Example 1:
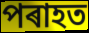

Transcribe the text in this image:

পৰাহত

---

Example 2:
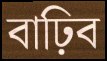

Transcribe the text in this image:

বাঢ়িব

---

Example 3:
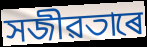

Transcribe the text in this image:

সজীৱতাৰে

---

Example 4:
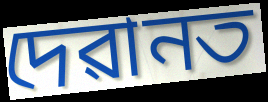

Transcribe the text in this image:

দেৱানত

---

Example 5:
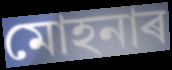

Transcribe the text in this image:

মোহনাৰ